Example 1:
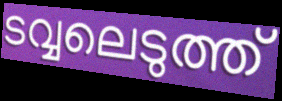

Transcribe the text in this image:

ടവ്വലെടുത്ത്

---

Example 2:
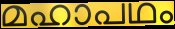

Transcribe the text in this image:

മഹാപഥം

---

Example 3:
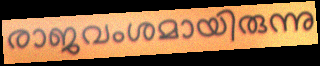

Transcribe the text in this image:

രാജവംശമായിരുന്നു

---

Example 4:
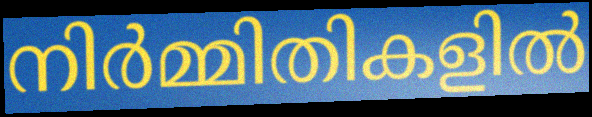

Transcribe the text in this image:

നിർമ്മിതികളിൽ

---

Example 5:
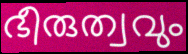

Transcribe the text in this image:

ഭീരുത്വവും